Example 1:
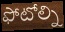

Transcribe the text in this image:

ఫోటోల్ని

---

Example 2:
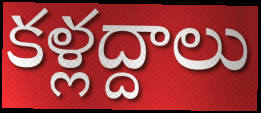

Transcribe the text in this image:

కళ్లద్దాలు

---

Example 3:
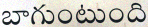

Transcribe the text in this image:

బాగుంటుంది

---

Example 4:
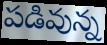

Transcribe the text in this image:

పడివున్న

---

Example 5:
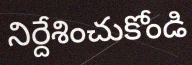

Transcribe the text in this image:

నిర్దేశించుకోండి